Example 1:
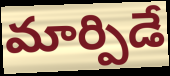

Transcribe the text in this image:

మార్పిడే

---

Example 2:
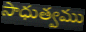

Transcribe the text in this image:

సాధుత్వము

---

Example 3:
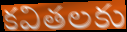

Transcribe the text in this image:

కవితలకు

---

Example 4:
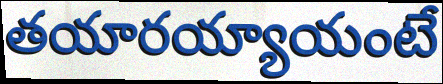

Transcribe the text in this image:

తయారయ్యాయంటే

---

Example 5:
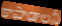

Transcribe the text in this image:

కాపాడాలనీ